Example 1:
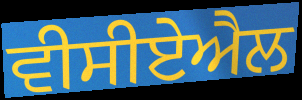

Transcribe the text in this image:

ਵੀਸੀਏਐਲ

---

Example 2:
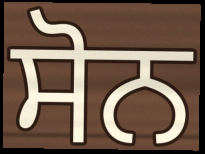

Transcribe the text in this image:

ਸੋਨ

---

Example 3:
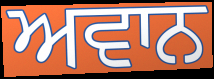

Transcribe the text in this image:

ਅਵਾਨ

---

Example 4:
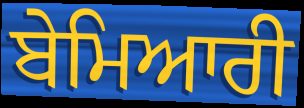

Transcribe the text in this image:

ਬੇਮਿਆਰੀ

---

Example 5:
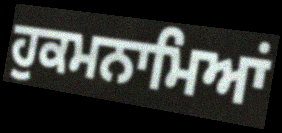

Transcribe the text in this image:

ਹੁਕਮਨਾਮਿਆਂ